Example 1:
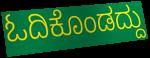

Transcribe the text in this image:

ಓದಿಕೊಂಡದ್ದು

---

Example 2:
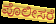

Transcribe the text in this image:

ಪೊಲೀಸರೆ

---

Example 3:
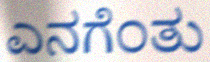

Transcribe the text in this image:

ಎನಗೆಂತು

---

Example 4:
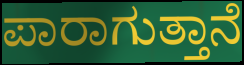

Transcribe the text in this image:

ಪಾರಾಗುತ್ತಾನೆ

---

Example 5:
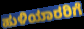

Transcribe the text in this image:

ಹುಳಿಯಾರರಿಗೆ